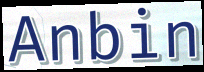
Anbin